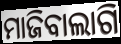
ମାଜିବାଲାଗି